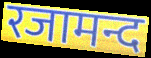
रजामन्द